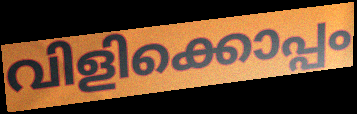
വിളിക്കൊപ്പം